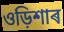
ওড়িশাৰ